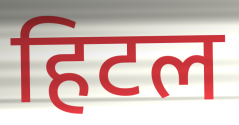
हिटल